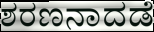
ಶರಣನಾದಡೆ